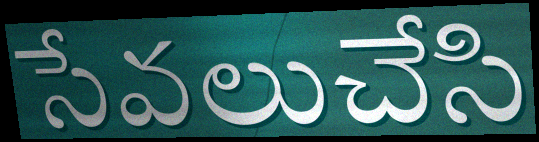
సేవలుచేసి